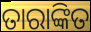
ତାରାଙ୍କିତ